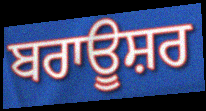
ਬਰਾਊਸ਼ਰ